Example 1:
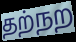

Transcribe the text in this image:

தற்நற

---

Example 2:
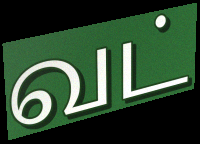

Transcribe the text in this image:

வட்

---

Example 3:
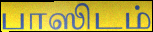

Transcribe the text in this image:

பாஸிடம்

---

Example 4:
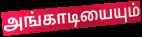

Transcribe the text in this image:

அங்காடியையும்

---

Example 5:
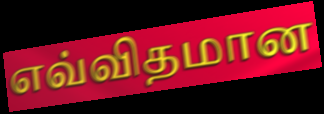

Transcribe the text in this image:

எவ்விதமான